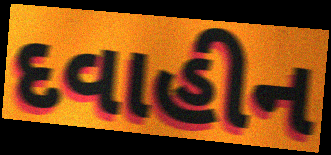
દવાહીન